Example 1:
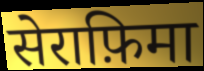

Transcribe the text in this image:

सेराफ़िमा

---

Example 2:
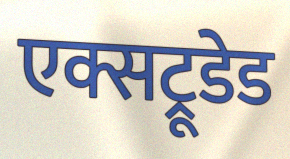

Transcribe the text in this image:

एक्सट्रूडेड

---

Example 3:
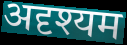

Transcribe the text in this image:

अदृश्यम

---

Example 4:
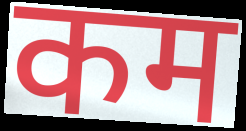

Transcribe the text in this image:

कम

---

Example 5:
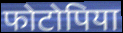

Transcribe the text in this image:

फोटोपिया